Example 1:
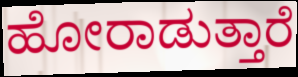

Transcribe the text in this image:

ಹೋರಾಡುತ್ತಾರೆ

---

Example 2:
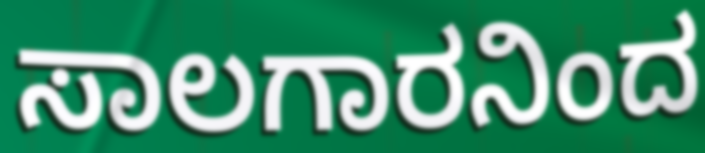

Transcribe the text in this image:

ಸಾಲಗಾರನಿಂದ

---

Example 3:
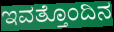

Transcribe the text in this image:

ಇವತ್ತೊಂದಿನ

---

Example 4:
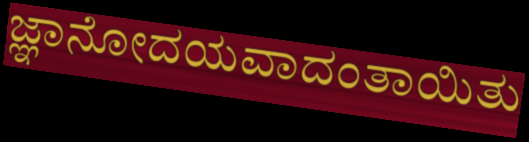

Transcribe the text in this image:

ಜ್ಞಾನೋದಯವಾದಂತಾಯಿತು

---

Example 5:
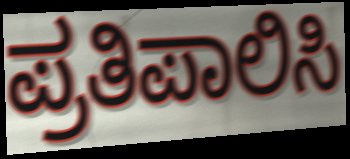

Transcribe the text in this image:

ಪ್ರತಿಪಾಲಿಸಿ